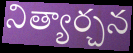
నిత్యార్చన